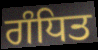
ਗੰਧਿਤ